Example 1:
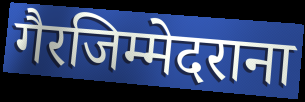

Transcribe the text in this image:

गैरजिम्मेदराना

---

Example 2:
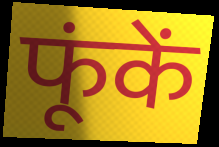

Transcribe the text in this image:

फूंकें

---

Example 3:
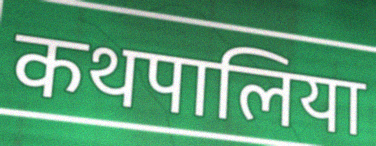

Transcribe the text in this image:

कथपालिया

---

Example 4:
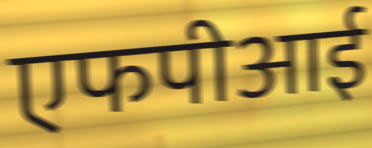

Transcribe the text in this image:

एफपीआई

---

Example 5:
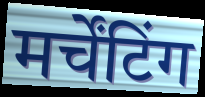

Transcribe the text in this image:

मर्चेंटिंग